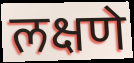
लक्षणे